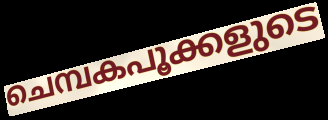
ചെമ്പകപൂക്കളുടെ